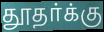
தூதர்க்கு